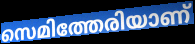
സെമിത്തേരിയാണ്